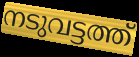
നടുവട്ടത്ത്